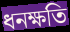
ধনক্ষতি